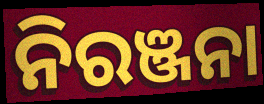
ନିରଞ୍ଜନା